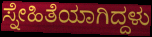
ಸ್ನೇಹಿತೆಯಾಗಿದ್ದಳು